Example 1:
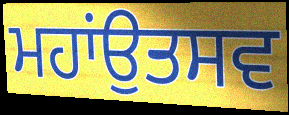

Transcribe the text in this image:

ਮਹਾਂਉਤਸਵ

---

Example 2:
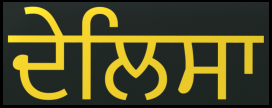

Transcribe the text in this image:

ਦੇਲਿਸਾ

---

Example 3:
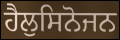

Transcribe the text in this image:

ਹੈਲੁਸਿਨੋਜਨ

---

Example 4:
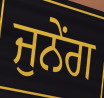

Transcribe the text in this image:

ਜੁਨੇਂਗ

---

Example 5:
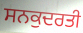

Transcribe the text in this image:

ਸਨਕੁਦਰਤੀ